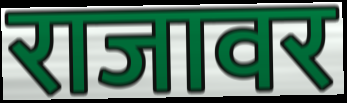
राजावर